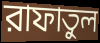
রাফাতুল